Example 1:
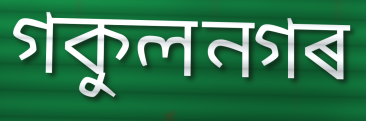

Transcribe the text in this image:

গকুলনগৰ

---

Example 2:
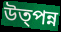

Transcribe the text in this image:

উত্পন্ন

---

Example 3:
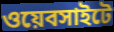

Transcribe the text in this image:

ওয়েবসাইটে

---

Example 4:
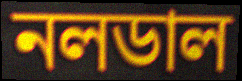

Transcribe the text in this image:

নলডাল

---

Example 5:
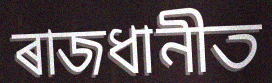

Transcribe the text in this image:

ৰাজধানীত